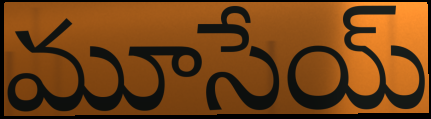
మూసేయ్